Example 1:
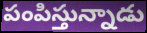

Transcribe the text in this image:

పంపిస్తున్నాడు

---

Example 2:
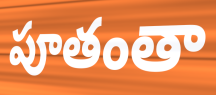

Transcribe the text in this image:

పూతంతా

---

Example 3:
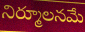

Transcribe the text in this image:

నిర్మూలనమే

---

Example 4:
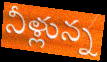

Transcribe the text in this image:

నీళ్లున్న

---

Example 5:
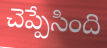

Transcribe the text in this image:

చెప్పేసింది